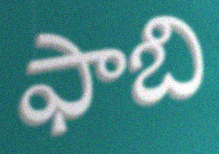
ఫాబి